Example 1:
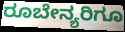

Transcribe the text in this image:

ರೂಬೇನ್ಯರಿಗೂ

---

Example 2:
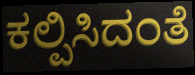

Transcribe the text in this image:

ಕಲ್ಪಿಸಿದಂತೆ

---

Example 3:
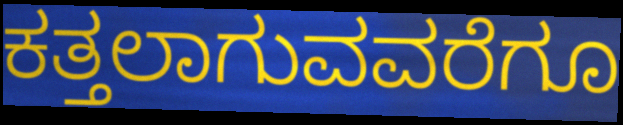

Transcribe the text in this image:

ಕತ್ತಲಾಗುವವರೆಗೂ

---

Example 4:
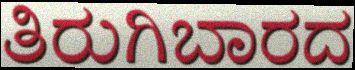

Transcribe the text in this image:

ತಿರುಗಿಬಾರದ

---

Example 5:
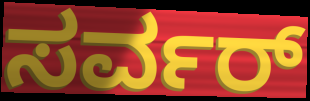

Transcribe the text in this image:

ಸರ್ವರ್